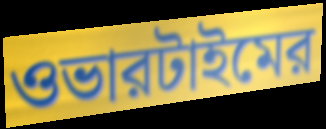
ওভারটাইমের